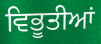
ਵਿਭੂਤੀਆਂ